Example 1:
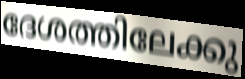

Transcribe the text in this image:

ദേശത്തിലേക്കു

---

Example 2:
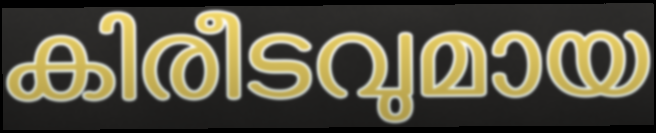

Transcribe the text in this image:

കിരീടവുമായ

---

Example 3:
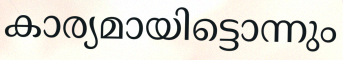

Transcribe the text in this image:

കാര്യമായിട്ടൊന്നും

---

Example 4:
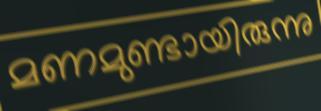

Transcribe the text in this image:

മണമുണ്ടായിരുന്നു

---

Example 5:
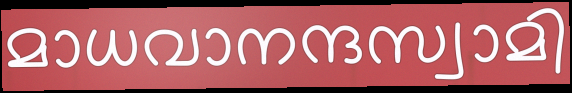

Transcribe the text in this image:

മാധവാനന്ദസ്വാമി